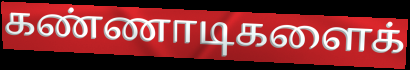
கண்ணாடிகளைக்